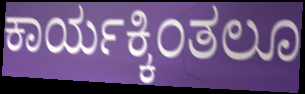
ಕಾರ್ಯಕ್ಕಿಂತಲೂ